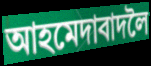
আহমেদাবাদলৈ